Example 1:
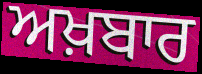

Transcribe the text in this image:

ਅਖ਼ਬਾਰ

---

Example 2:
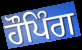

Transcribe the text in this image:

ਹੌਪਿੰਗ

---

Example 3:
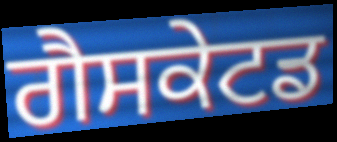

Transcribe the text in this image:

ਗੈਸਕੇਟਡ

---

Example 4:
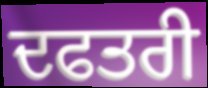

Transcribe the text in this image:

ਦਫਤਰੀ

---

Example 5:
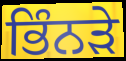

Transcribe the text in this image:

ਭਿੰਨੜੇ